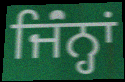
ਜਿੰਂਨ੍ਹਾਂ